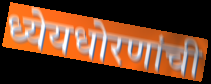
ध्येयधोरणांची